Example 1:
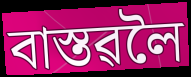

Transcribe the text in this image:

বাস্তৱলৈ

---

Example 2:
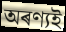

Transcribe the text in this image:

অৰণ্যই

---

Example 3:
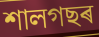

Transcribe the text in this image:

শালগছৰ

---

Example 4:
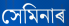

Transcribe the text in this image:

সেমিনাৰ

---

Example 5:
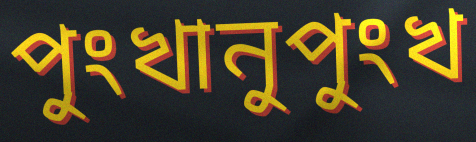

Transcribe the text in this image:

পুংখানুপুংখ